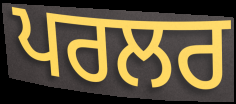
ਪਰਲਰ